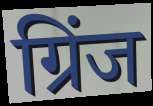
ग्रिंज